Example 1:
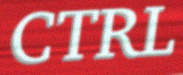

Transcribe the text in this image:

CTRL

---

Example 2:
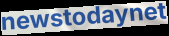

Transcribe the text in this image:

newstodaynet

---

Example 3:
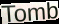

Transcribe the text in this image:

Tomb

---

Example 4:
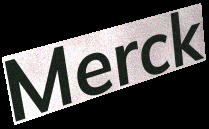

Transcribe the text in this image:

Merck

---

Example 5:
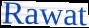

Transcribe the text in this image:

Rawat